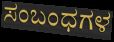
ಸಂಬಂಧಗಳ